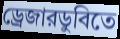
ড্রেজারডুবিতে